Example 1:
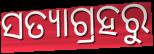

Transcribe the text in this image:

ସତ୍ୟାଗ୍ରହରୁ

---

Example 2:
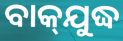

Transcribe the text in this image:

ବାକ୍‌ଯୁଦ୍ଧ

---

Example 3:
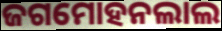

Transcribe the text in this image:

ଜଗମୋହନଲାଲ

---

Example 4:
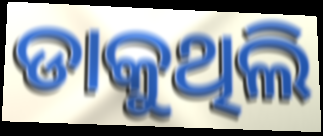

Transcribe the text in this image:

ଡାକୁଥିଲି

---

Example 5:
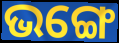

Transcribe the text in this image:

ଭଙ୍ଗେ